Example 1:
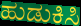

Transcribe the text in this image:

ಹುಡುಕಿಸಿ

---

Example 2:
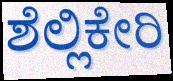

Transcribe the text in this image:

ಶೆಲ್ಲಿಕೇರಿ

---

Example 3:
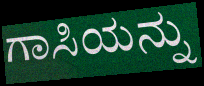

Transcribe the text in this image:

ಗಾಸಿಯನ್ನು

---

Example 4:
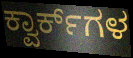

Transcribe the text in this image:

ಕ್ವಾರ್ಕ್‌ಗಳ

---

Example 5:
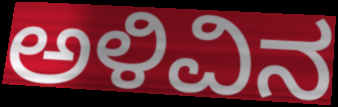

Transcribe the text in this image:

ಅಳಿವಿನ